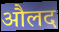
औलद